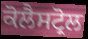
ਕੋਲੈਸਟ੍ਰੋਲ